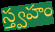
స్త్వహం